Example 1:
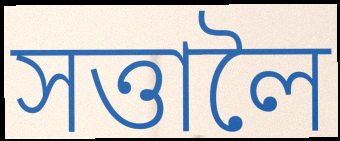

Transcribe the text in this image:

সত্তালৈ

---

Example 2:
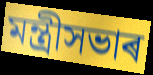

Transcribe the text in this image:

মন্ত্ৰীসভাৰ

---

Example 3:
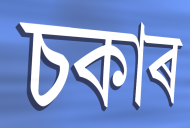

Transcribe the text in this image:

চকাৰ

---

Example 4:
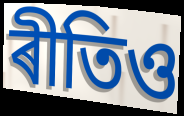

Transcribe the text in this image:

ৰীতিও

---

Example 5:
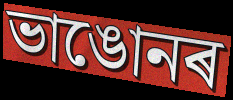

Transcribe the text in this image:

ভাঙোনৰ